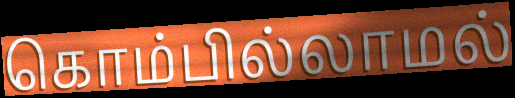
கொம்பில்லாமல்